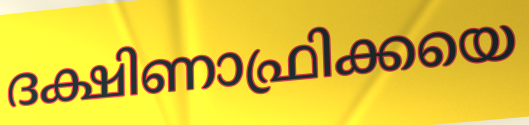
ദക്ഷിണാഫ്രിക്കയെ